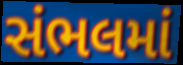
સંભલમાં